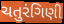
ચતુરંગિણી